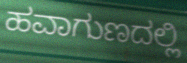
ಹವಾಗುಣದಲ್ಲಿ